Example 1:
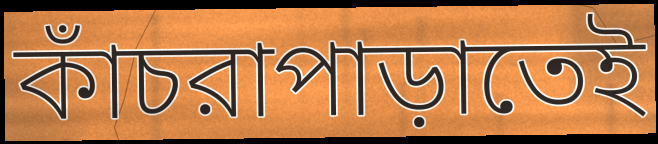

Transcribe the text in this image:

কাঁচরাপাড়াতেই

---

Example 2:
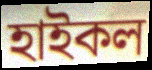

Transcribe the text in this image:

হাইকল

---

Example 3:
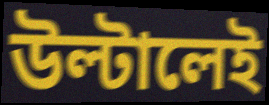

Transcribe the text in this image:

উল্টালেই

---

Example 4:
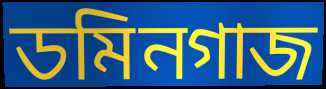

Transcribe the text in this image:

ডমিনগাজ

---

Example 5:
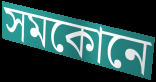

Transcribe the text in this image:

সমকোনে